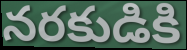
నరకుడికి